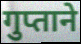
गुप्ताने